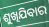
ଶୁଖିଯିବାର